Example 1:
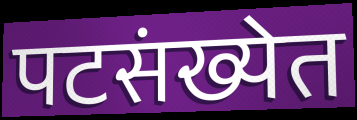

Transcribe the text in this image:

पटसंख्येत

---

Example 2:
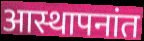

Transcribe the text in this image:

आस्थापनांत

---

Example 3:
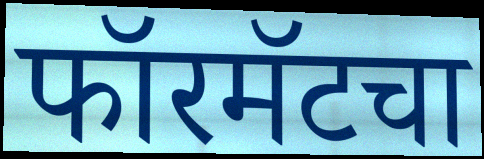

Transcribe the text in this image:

फॉरमॅटचा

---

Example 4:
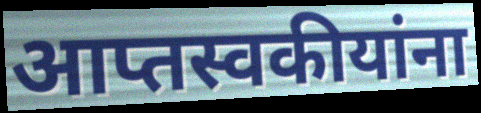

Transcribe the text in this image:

आप्तस्वकीयांना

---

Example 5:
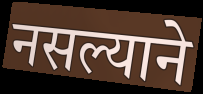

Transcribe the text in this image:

नसल्याने